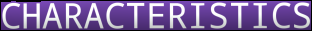
CHARACTERISTICS